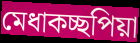
মেধাকচ্ছপিয়া